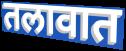
तलावात